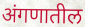
अंगणातील